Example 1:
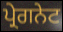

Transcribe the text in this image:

ਪ੍ਰੇਗਨੇਟ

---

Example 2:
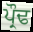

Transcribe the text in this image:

ਪ੍ਰੌਢ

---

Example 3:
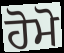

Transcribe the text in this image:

ਹੋਮੋ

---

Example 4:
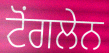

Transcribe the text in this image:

ਟੋਂਗਲੇਨ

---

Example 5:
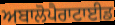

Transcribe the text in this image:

ਅਬਾਲੋਪੈਰਾਟਾਈਡ